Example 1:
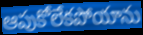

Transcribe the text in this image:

ఆపుకోలేకపోయాను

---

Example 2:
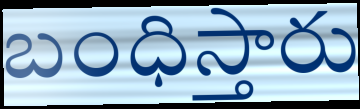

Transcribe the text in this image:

బంధిస్తారు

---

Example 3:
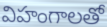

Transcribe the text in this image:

విహంగాలతో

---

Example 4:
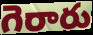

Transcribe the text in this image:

గెరారు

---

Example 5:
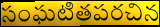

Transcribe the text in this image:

సంఘటితపరచిన